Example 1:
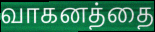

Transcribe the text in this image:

வாகனத்தை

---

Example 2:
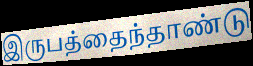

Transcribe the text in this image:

இருபத்தைந்தாண்டு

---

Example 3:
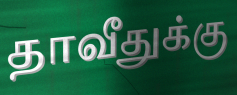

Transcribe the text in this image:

தாவீதுக்கு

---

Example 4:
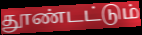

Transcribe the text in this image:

தூண்டட்டும்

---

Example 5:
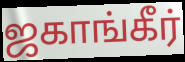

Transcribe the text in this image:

ஜகாங்கீர்